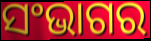
ସଂଭାଗର